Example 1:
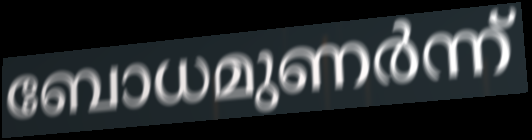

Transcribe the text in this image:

ബോധമുണർന്ന്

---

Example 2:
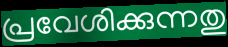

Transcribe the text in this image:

പ്രവേശിക്കുന്നതു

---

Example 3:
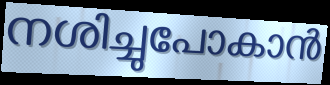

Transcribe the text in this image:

നശിച്ചുപോകാൻ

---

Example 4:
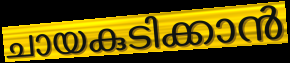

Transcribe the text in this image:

ചായകുടിക്കാൻ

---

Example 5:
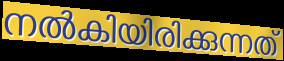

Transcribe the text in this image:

നൽകിയിരിക്കുന്നത്